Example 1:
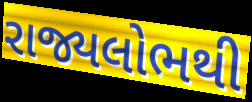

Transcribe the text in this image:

રાજ્યલોભથી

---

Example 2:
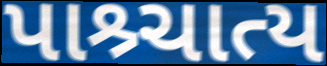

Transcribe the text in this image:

પાશ્ર્ચાત્ય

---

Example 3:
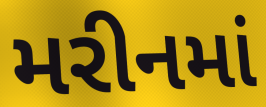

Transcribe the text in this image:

મરીનમાં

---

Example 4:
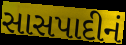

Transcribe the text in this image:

સાસપાદીનં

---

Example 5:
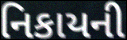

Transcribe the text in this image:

નિકાયની